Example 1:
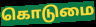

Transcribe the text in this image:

கொடுமை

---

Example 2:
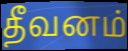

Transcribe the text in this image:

தீவனம்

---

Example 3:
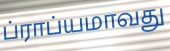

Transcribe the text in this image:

ப்ராப்யமாவது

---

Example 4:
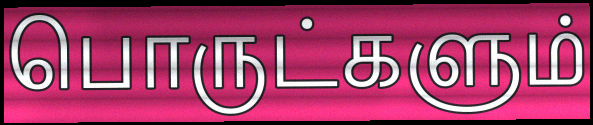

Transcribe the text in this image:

பொருட்களும்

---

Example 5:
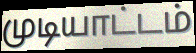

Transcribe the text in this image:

முடியாட்டம்